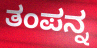
ತಂಪನ್ನ